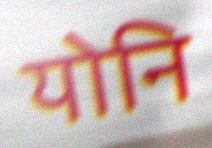
योनि